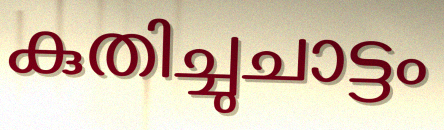
കുതിച്ചുചാട്ടം